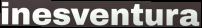
inesventura